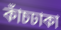
কাঁচঢাকা